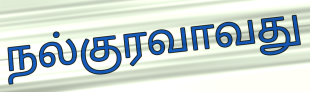
நல்குரவாவது